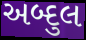
અબ્દુલ